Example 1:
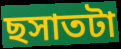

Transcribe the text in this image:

ছসাতটা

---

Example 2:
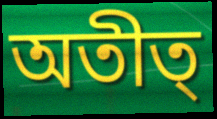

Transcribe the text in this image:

অতীত্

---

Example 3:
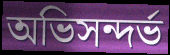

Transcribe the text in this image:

অভিসন্দর্ভ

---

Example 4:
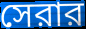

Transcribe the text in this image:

সেরার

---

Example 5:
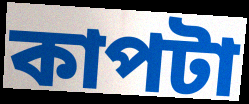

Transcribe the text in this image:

কাপটা